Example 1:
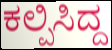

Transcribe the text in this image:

ಕಲ್ಪಿಸಿದ್ದ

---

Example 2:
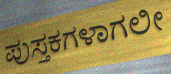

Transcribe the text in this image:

ಪುಸ್ತಕಗಳಾಗಲೀ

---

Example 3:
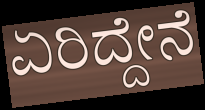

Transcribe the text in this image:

ಏರಿದ್ದೇನೆ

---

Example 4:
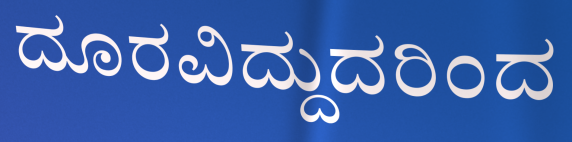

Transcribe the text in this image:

ದೂರವಿದ್ದುದರಿಂದ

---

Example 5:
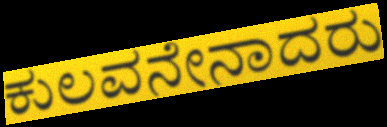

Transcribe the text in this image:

ಕುಲವನೇನಾದರು